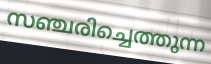
സഞ്ചരിച്ചെത്തുന്ന